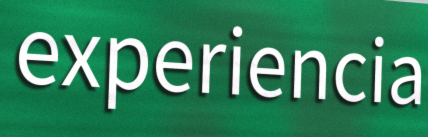
experiencia